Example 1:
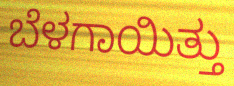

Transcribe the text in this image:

ಬೆಳಗಾಯಿತ್ತು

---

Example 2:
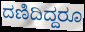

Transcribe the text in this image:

ದಣಿದಿದ್ದರೂ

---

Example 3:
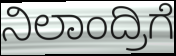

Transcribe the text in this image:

ನಿಲಾಂದ್ರಿಗೆ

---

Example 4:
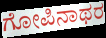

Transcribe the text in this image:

ಗೋಪಿನಾಥರ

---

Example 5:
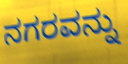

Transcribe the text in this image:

ನಗರವನ್ನು